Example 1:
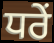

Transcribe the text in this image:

ਧਰੇਂ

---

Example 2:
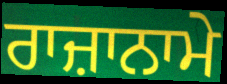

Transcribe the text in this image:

ਰਾਜ਼ਾਨਾਮੇ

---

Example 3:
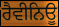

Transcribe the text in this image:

ਰੈਵੀਨਿਊ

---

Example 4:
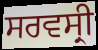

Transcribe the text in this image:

ਸਰਵਸ੍ਰੀ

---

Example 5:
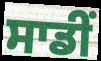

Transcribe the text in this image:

ਸਾਡੀਂ